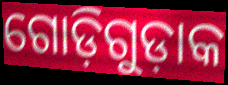
ଗୋଡ଼ିଗୁଡ଼ାକ